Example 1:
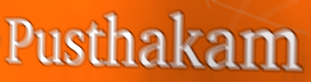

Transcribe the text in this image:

Pusthakam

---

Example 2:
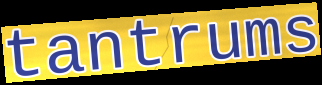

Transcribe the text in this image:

tantrums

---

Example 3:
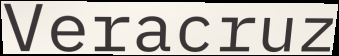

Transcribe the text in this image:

Veracruz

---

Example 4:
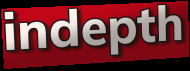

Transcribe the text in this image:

indepth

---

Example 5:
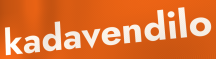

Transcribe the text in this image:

kadavendilo